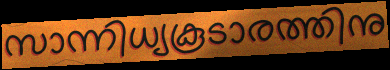
സാന്നിധ്യകൂടാരത്തിനു